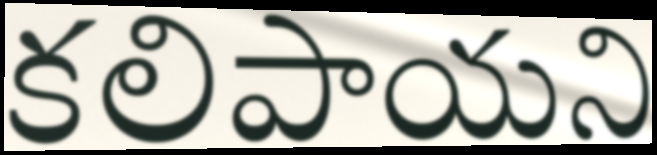
కలిపాయని